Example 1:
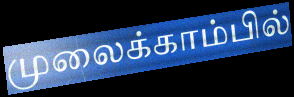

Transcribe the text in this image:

முலைக்காம்பில்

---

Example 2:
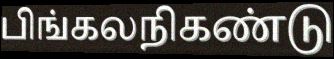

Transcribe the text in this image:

பிங்கலநிகண்டு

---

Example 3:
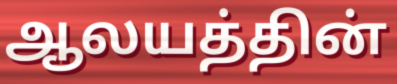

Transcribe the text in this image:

ஆலயத்தின்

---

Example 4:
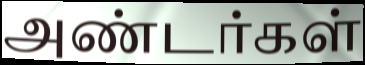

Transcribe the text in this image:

அண்டர்கள்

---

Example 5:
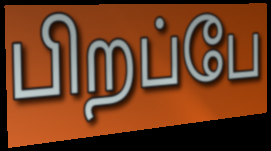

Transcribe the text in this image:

பிறப்பே